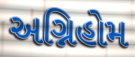
અગ્નિહોમ